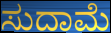
ಸುದಾಮೆ